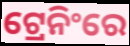
ଟ୍ରେନିଂରେ